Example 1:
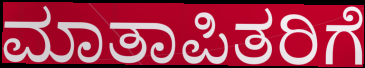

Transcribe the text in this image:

ಮಾತಾಪಿತರಿಗೆ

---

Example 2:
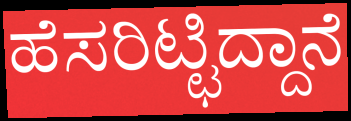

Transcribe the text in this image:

ಹೆಸರಿಟ್ಟಿದ್ದಾನೆ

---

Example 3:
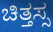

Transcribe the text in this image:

ಚಿತ್ತಸ್ಸ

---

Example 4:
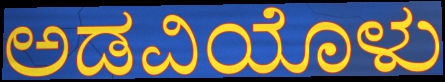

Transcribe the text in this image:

ಅಡವಿಯೊಳು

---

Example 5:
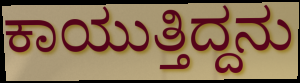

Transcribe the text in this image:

ಕಾಯುತ್ತಿದ್ದನು